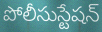
పోలీసుస్టేషన్